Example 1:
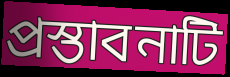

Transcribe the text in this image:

প্রস্তাবনাটি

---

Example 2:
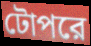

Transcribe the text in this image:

টোপরে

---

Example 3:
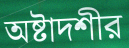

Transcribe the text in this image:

অষ্টাদশীর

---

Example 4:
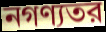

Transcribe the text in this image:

নগণ্যতর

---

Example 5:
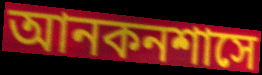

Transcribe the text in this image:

আনকনশাসে